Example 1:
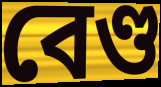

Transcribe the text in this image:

বেণ্ড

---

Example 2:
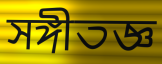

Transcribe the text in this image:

সঙ্গীতজ্ঞ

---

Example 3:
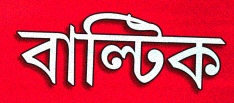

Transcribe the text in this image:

বাল্টিক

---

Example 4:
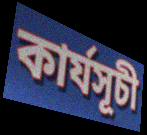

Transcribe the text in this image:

কাৰ্যসূচী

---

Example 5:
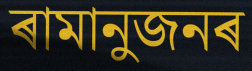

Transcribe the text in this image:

ৰামানুজনৰ